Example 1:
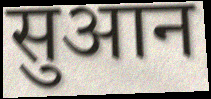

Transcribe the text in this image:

सुआन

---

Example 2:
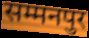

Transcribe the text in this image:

सम्मनपुर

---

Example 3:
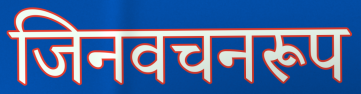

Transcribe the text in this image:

जिनवचनरूप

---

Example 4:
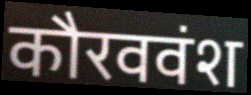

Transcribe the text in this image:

कौरववंश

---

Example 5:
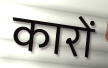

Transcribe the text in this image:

कारों